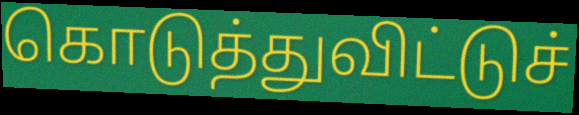
கொடுத்துவிட்டுச்